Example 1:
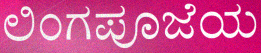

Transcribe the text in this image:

ಲಿಂಗಪೂಜೆಯ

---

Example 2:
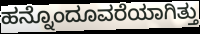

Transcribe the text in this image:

ಹನ್ನೊಂದೂವರೆಯಾಗಿತ್ತು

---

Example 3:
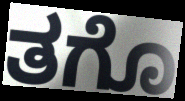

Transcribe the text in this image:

ತಗೊ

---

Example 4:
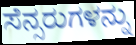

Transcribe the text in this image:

ಸೆನ್ಸರುಗಳನ್ನು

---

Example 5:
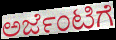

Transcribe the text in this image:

ಅರ್ಜೆಂಟಿಗೆ